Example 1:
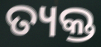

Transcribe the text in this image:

ତ୍ୟକ୍ତ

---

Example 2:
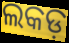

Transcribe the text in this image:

ଲକଡ଼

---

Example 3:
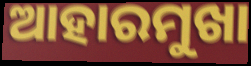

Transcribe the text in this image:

ଆହାରମୁଖା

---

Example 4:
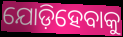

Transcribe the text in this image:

ଯୋଡ଼ିହେବାକୁ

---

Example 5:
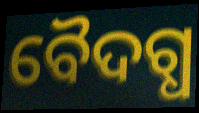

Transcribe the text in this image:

ବୈଦଗ୍ଧ